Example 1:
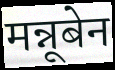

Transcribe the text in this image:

मन्नूबेन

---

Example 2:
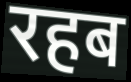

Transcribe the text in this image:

रहब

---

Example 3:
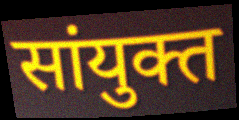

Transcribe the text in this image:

सांयुक्त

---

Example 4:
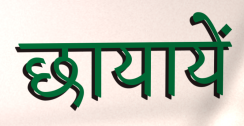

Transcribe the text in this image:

छायायें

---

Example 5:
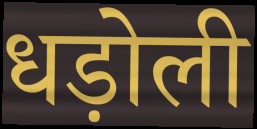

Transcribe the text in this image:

धड़ोली